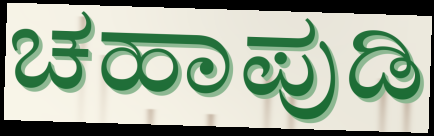
ಚಹಾಪುಡಿ